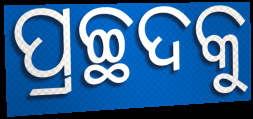
ପ୍ରଚ୍ଛଦକୁ